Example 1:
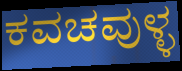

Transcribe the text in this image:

ಕವಚವುಳ್ಳ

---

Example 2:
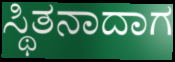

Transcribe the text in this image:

ಸ್ಥಿತನಾದಾಗ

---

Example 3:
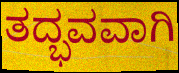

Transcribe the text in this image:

ತದ್ಭವವಾಗಿ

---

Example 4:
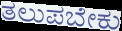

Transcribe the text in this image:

ತಲುಪಬೇಕು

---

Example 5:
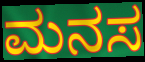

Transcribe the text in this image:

ಮನಸ